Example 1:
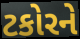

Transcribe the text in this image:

ટકોરને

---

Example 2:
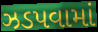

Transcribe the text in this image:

ઝડપવામાં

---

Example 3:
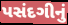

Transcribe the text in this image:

પસંદગીનું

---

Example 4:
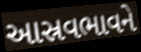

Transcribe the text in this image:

આસ્રવભાવને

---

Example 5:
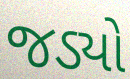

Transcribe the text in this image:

જડ્યો